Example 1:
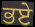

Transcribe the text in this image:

ਭਏ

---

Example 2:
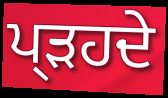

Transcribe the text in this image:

ਪ੍ੜਹਦੇ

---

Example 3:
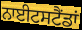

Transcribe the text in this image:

ਨਾਈਟਸਟੈਂਡਾਂ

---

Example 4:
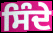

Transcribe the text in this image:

ਸਿੰਦੇ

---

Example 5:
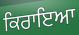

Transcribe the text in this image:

ਕਿਰਾਇਆ